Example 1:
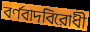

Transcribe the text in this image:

বর্ণবাদবিরোধী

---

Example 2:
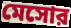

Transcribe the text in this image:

মেসোর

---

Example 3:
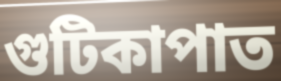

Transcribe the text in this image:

গুটিকাপাত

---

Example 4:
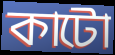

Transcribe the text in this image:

কাটো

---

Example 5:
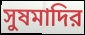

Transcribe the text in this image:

সুষমাদির